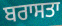
ਬਰਾਸਤਾ